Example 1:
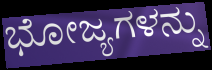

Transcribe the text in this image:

ಭೋಜ್ಯಗಳನ್ನು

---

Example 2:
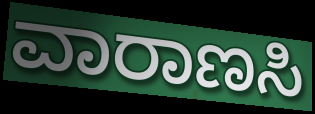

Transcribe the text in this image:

ವಾರಾಣಸಿ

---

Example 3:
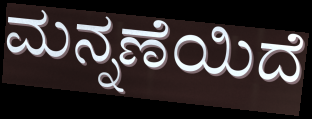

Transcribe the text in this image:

ಮನ್ನಣೆಯಿದೆ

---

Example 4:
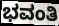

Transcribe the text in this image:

ಭವಂತಿ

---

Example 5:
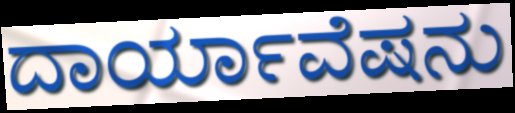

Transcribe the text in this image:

ದಾರ್ಯಾವೆಷನು